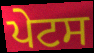
ਪੇਟਸ